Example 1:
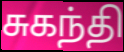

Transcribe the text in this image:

சுகந்தி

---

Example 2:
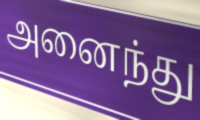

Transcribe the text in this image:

அனைந்து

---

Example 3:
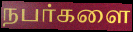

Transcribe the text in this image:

நபர்களை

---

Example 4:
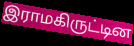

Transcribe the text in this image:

இராமகிருட்டின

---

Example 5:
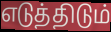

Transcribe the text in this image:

எடுத்திடும்